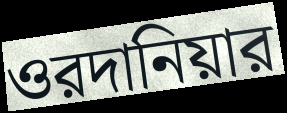
ওরদানিয়ার